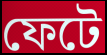
ফেটে